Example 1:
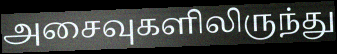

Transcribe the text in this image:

அசைவுகளிலிருந்து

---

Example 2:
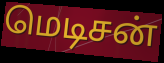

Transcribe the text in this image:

மெடிசன்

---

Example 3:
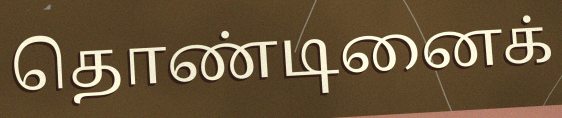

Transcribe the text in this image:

தொண்டினைக்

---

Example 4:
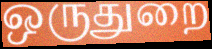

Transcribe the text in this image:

ஒருதுறை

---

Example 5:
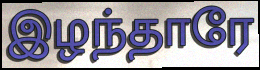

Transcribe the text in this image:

இழந்தாரே